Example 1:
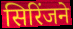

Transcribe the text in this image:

सिरिंजने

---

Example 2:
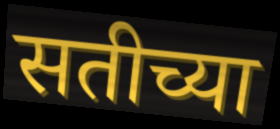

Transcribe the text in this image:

सतीच्या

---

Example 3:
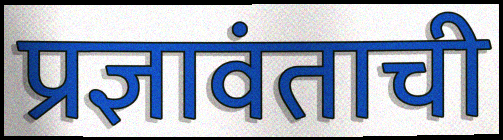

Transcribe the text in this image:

प्रज्ञावंताची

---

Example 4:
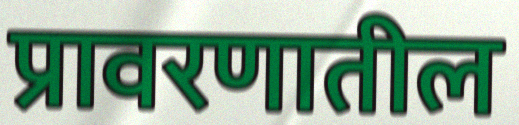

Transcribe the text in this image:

प्रावरणातील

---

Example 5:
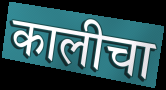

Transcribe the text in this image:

कालीचा